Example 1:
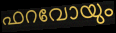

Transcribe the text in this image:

ഫറവോയും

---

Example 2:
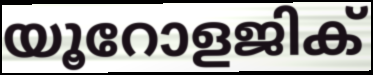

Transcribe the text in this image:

യൂറോളജിക്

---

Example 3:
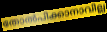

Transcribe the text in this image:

തോൽപിക്കാനാവില്ല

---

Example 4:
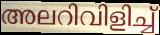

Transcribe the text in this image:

അലറിവിളിച്ച്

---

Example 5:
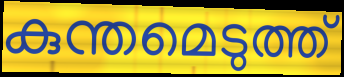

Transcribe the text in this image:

കുന്തമെടുത്ത്